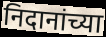
निदानांच्या